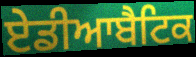
ਏਡੀਆਬੈਟਿਕ